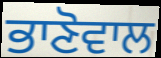
ਭਾਣੋਵਾਲ